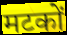
मटकों